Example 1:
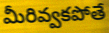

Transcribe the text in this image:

మీరివ్వకపోతే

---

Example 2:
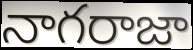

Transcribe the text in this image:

నాగరాజా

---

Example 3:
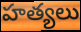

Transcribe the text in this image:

హత్యలు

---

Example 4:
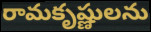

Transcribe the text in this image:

రామకృష్ణులను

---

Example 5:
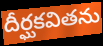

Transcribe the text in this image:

దీర్ఘకవితను